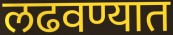
लढवण्यात